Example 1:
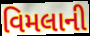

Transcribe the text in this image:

વિમલાની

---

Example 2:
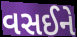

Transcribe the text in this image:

વસઈને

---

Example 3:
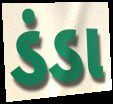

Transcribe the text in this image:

ડંડા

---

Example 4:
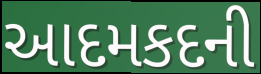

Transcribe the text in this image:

આદમકદની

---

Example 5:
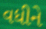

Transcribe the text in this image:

વધીને